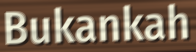
Bukankah